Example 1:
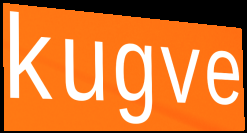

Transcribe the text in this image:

kugve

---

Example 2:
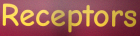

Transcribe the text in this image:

Receptors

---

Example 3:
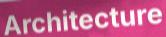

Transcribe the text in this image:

Architecture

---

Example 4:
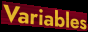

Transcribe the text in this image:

Variables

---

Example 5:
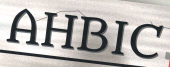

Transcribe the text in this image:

AHBIC